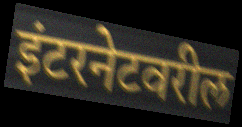
इंटरनेटवरील